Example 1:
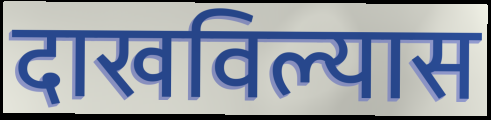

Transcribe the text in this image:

दाखविल्यास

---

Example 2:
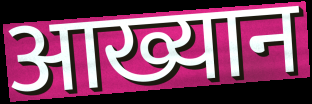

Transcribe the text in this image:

आख्यान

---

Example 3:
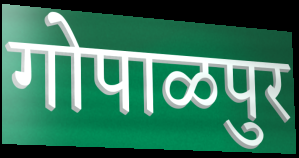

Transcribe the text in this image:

गोपाळपुर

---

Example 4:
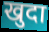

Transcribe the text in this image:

खुदा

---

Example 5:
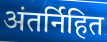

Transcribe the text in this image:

अंतर्निहित